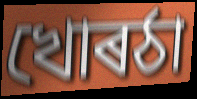
খোৰঠা